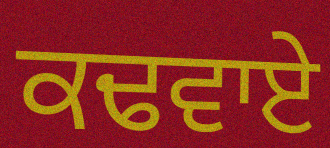
ਕਢਵਾਏ